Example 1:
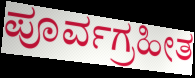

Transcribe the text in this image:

ಪೂರ್ವಗ್ರಹೀತ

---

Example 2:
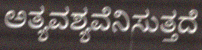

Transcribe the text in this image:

ಅತ್ಯವಶ್ಯವೆನಿಸುತ್ತದೆ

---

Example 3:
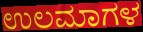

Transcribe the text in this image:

ಉಲಮಾಗಳ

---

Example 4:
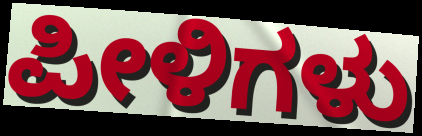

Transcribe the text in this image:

ಪೀಳಿಗಳು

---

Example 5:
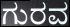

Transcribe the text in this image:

ಗುರವ